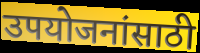
उपयोजनांसाठी